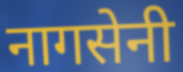
नागसेनी